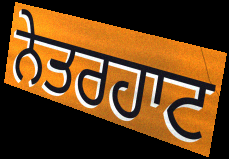
ਨੇਤਰਹਾਟ